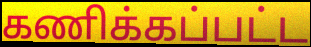
கணிக்கப்பட்ட